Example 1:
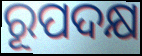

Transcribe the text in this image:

ରୂପଦକ୍ଷ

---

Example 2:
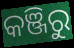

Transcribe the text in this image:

କଞ୍ଜିରୁ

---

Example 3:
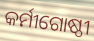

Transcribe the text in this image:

କର୍ମୀଗୋଷ୍ଠୀ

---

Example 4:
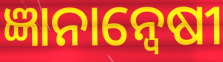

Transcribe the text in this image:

ଜ୍ଞାନାନ୍ୱେଷୀ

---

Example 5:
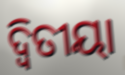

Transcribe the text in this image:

ଦ୍ଵିତୀୟା